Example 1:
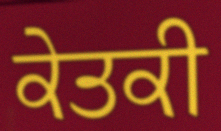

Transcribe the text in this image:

ਕੇਤਕੀ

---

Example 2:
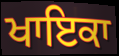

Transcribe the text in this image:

ਖਾਇਕਾ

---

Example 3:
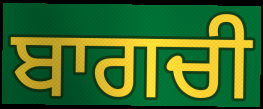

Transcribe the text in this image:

ਬਾਗਚੀ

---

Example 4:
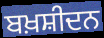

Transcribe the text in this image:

ਬਖ਼ਸ਼ੀਦਨ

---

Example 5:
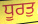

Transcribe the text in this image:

ਧੂਰਤੁ